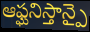
ఆఫ్ఘనిస్తాన్పై